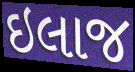
ઇલાજ